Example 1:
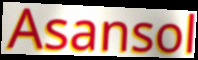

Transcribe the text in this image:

Asansol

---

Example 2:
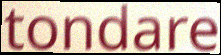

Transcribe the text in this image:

tondare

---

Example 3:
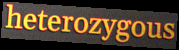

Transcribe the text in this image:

heterozygous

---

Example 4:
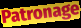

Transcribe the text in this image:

Patronage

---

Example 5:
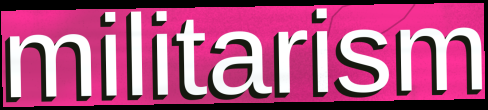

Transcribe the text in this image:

militarism